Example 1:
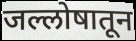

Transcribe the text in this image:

जल्लोषातून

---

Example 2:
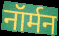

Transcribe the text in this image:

नॉर्मन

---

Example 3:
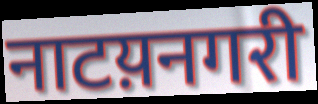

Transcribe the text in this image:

नाटय़नगरी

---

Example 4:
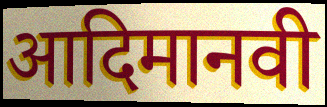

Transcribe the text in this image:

आदिमानवी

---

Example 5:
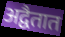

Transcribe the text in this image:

अद्वैतात